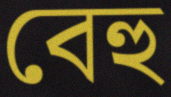
বেহু